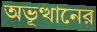
অভূত্থানের